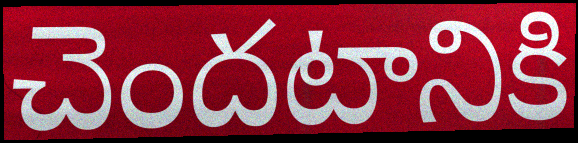
చెందటానికి